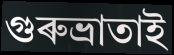
গুৰুভ্ৰাতাই